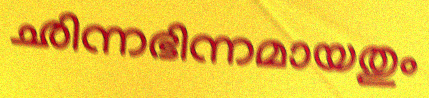
ഛിന്നഭിന്നമായതും